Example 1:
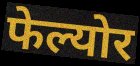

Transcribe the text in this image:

फेल्योर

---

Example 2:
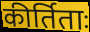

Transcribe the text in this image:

कीर्तिताः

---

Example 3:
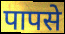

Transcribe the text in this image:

पापसे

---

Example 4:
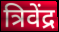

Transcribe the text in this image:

त्रिवेंद्र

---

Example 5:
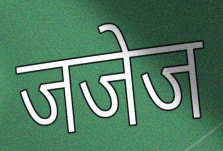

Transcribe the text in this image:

जजेज